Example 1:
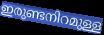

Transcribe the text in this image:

ഇരുണ്ടനിറമുള്ള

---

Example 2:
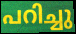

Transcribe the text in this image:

പറിച്ചു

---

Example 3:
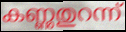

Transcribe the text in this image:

കണ്ണുതുറന്ന്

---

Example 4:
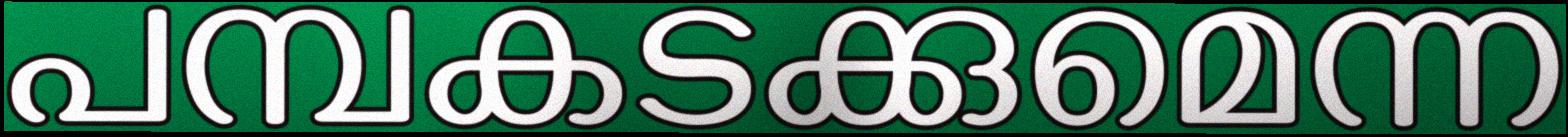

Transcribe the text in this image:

പമ്പകടക്കുമെന്ന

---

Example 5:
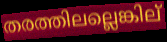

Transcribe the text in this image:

തരത്തിലല്ലെങ്കില്